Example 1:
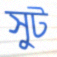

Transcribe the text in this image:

সুট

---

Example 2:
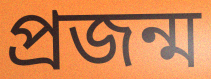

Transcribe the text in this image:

প্রজন্ম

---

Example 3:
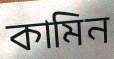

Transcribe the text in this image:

কামিন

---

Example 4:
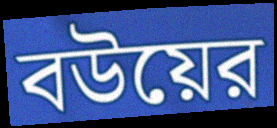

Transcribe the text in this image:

বউয়ের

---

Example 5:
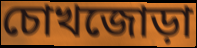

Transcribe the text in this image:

চোখজোড়া